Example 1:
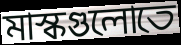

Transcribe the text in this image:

মাস্কগুলোতে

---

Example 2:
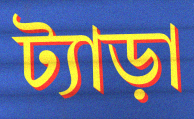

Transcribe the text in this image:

ট্যাড়া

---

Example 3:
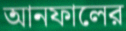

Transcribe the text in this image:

আনফালের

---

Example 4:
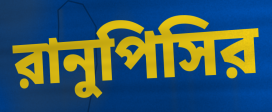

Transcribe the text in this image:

রানুপিসির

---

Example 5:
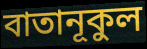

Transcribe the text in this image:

বাতানূকুল